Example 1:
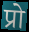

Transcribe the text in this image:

प्रो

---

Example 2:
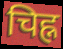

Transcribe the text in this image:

चिह्न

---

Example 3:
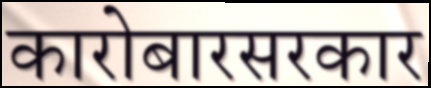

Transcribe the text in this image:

कारोबारसरकार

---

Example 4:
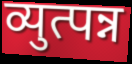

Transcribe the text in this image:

व्युत्पन्न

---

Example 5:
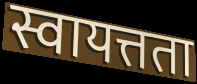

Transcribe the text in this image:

स्वायत्तता